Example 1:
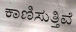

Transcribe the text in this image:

ಕಾಣಿಸುತ್ತಿವೆ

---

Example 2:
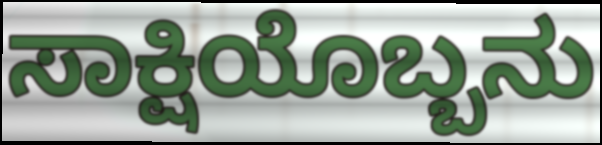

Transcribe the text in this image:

ಸಾಕ್ಷಿಯೊಬ್ಬನು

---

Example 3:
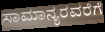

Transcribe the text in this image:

ಸಾಮಾನ್ಯರವರೆಗೆ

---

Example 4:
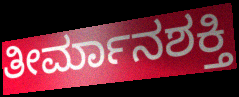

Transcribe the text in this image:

ತೀರ್ಮಾನಶಕ್ತಿ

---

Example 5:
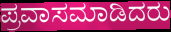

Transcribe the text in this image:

ಪ್ರವಾಸಮಾಡಿದರು